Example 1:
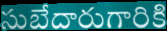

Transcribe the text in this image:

సుబేదారుగారికి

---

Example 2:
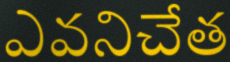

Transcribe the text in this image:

ఎవనిచేత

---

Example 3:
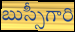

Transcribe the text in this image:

బుస్సీగారి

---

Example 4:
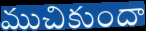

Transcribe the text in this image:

ముచికుందా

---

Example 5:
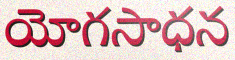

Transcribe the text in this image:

యోగసాధన